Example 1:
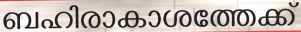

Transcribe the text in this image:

ബഹിരാകാശത്തേക്ക്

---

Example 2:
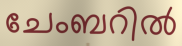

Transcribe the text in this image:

ചേംബറിൽ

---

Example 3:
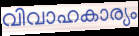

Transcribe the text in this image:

വിവാഹകാര്യം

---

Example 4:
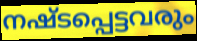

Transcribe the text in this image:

നഷ്ടപ്പെട്ടവരും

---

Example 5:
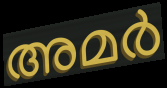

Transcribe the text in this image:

അമർ